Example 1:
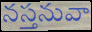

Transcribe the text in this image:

నస్తనువా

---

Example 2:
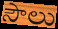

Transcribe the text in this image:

సౌలు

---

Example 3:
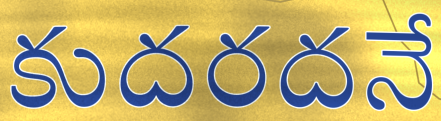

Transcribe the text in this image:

కుదరదనే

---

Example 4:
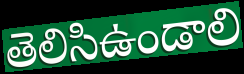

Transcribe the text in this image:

తెలిసిఉండాలి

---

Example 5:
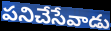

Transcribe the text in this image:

పనిచేసేవాడు